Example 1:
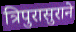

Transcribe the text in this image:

त्रिपुरासुराने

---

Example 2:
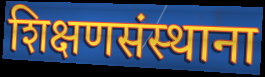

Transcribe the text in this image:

शिक्षणसंस्थाना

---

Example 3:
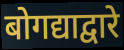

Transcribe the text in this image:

बोगद्याद्वारे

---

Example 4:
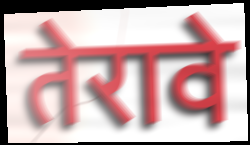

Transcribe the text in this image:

तेरावे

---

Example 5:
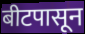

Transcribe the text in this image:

बीटपासून